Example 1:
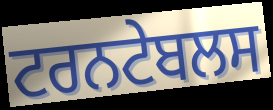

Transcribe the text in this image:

ਟਰਨਟੇਬਲਸ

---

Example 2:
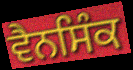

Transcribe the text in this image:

ਵੈਨਸਿੰਕ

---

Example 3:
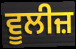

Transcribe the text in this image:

ਵੂਲੀਜ਼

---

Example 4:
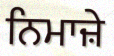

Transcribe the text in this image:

ਨਿਮਾਜ਼ੇ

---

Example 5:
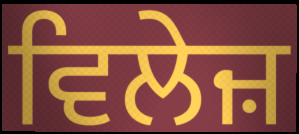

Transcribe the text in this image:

ਵਿਲੇਜ਼